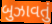
બુઝાવતું